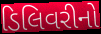
ડિલિવરીનો